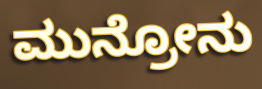
ಮುನ್ರೋನು